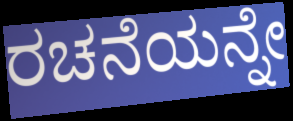
ರಚನೆಯನ್ನೇ